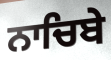
ਨਾਚਿਬੇ